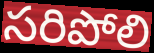
సరిపోలి